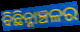
ବିଛିନ୍ନାଞ୍ଚଳର